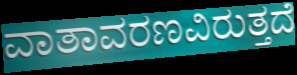
ವಾತಾವರಣವಿರುತ್ತದೆ